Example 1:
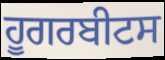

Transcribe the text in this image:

ਹੂਗਰਬੀਟਸ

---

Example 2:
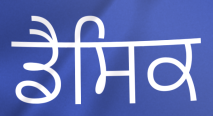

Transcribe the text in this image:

ਡੈਸਿਕ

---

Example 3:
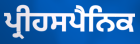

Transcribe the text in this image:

ਪ੍ਰੀਹਸਪੈਨਿਕ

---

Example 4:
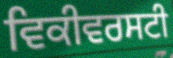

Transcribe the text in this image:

ਵਿਕੀਵਰਸਟੀ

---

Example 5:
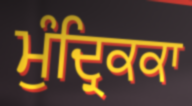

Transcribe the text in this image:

ਮੁੰਦ੍ਰਿਕਕਾ